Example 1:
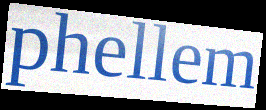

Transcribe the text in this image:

phellem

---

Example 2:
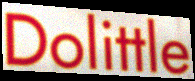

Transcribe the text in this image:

Dolittle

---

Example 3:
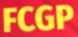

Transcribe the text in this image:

FCGP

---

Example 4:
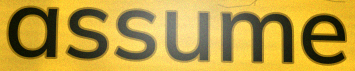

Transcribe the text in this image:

assume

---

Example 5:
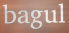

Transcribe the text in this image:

bagul